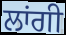
ਲਾਂਗੀ